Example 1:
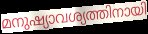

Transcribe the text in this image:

മനുഷ്യാവശ്യത്തിനായി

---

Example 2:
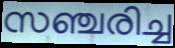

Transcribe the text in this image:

സഞ്ചരിച്ച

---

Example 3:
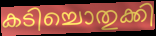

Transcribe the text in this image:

കടിച്ചൊതുക്കി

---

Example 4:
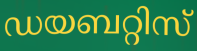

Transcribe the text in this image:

ഡയബറ്റിസ്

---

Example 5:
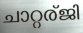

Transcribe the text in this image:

ചാറ്റര്ജി